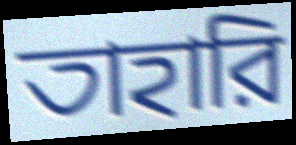
তাহারি